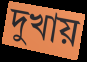
দুখায়